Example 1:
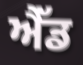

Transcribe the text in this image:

ਐੱਡ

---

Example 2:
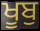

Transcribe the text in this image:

ਖੂਬੁ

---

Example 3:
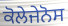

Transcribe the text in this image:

ਕੋਲੇਜੇਨੋਸ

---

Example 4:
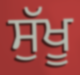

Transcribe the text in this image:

ਸੁੱਖੂ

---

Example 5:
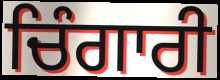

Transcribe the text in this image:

ਚਿੰਗਾਰੀ